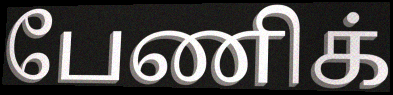
பேணிக்